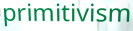
primitivism